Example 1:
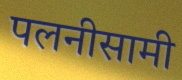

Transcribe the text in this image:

पलनीसामी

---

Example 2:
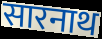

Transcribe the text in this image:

सारनाथ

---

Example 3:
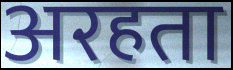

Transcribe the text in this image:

अरहता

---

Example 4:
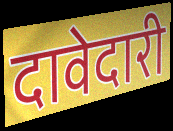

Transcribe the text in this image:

दावेदारी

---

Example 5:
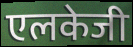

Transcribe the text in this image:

एलकेजी